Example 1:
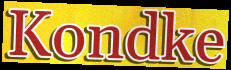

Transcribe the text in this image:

Kondke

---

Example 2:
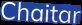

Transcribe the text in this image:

Chaitar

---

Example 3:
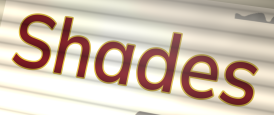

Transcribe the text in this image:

Shades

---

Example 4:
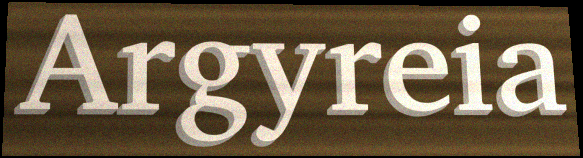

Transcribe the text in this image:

Argyreia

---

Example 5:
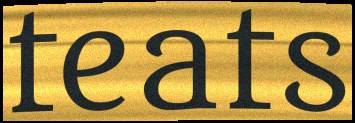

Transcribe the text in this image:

teats